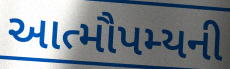
આત્મૌપમ્યની